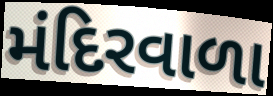
મંદિરવાળા